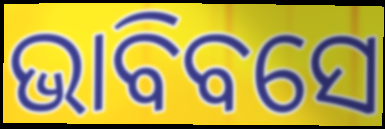
ଭାବିବସେ